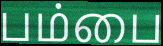
பம்பை